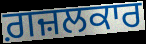
ਗ਼ਜ਼ਲਕਾਰ